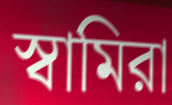
স্বামিরা